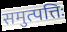
समुत्पत्तिः